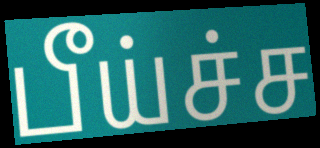
பீய்ச்ச